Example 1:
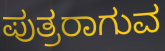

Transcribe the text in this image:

ಪುತ್ರರಾಗುವ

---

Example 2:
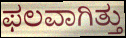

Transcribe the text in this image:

ಫಲವಾಗಿತ್ತು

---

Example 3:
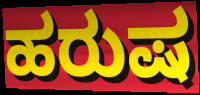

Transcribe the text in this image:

ಹರುಷ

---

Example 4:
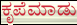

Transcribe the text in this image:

ಕೃಪೆಮಾಡು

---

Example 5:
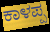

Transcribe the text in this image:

ಕಾಳಪ್ಪ